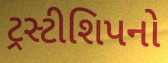
ટ્રસ્ટીશિપનો